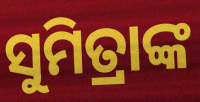
ସୁମିତ୍ରାଙ୍କ